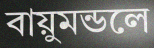
বায়ুমন্ডলে